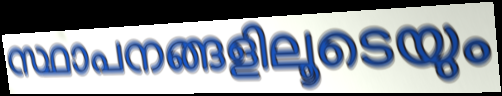
സ്ഥാപനങ്ങളിലൂടെയും